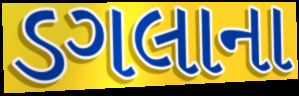
ડગલાના